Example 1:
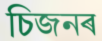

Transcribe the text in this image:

চিজনৰ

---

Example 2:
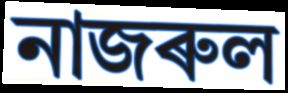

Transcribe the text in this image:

নাজৰুল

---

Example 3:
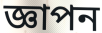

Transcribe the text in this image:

জ্ঞাপন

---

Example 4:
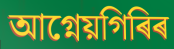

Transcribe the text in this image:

আগ্নেয়গিৰিৰ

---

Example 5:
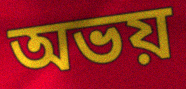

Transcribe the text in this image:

অভয়